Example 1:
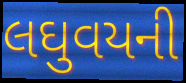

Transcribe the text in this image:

લઘુવયની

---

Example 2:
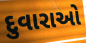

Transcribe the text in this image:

દુવારાઓ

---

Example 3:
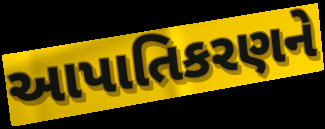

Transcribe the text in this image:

આપાતિકરણને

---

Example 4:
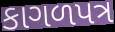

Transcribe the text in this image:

કાગળપત્ર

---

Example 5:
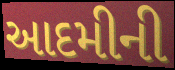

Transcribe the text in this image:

આદમીની